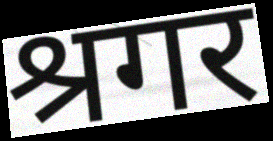
श्रगर